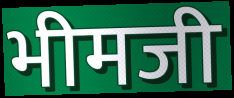
भीमजी